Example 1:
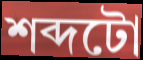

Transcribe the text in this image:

শব্দটো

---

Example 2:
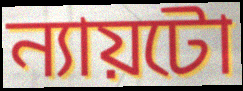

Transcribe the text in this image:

ন্যায়টো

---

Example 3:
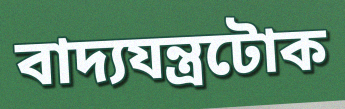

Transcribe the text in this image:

বাদ্যযন্ত্ৰটোক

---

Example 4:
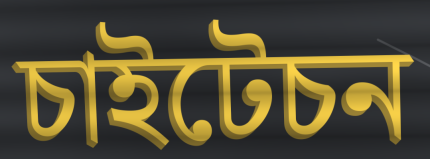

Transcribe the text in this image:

চাইটেচন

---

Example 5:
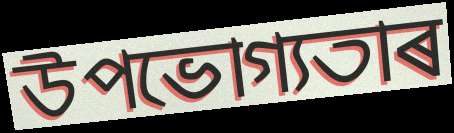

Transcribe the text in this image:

উপভোগ্যতাৰ